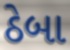
ઠેબા